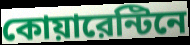
কোয়ারেন্টিনে